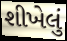
શીખેલું